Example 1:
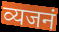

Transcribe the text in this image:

व्यजनं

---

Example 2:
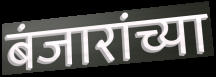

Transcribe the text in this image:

बंजारांच्या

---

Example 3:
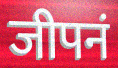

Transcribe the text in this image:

जीपनं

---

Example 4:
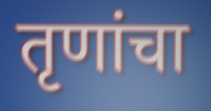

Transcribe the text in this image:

तृणांचा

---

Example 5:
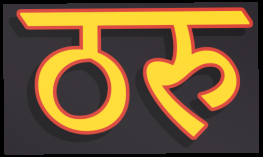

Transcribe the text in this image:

ठरु